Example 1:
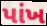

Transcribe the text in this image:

પાંખ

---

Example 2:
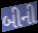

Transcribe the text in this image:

બીની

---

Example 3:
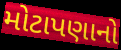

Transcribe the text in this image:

મોટાપણાનો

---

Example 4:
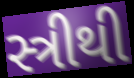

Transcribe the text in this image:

સ્ત્રીથી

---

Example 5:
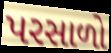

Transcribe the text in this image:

પરસાળો